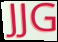
JJG